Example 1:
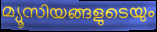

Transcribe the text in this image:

മ്യൂസിയങ്ങളുടെയും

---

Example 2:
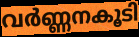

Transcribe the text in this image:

വർണ്ണനകൂടി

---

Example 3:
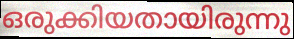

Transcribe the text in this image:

ഒരുക്കിയതായിരുന്നു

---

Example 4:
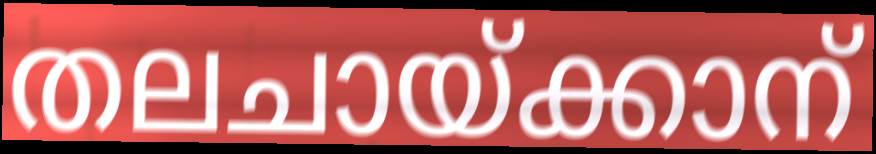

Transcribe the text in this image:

തലചായ്ക്കാന്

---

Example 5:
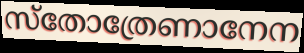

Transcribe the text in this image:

സ്തോത്രേണാനേന